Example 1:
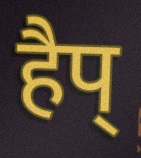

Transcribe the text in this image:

हैप्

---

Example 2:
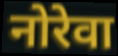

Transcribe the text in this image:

नोरेवा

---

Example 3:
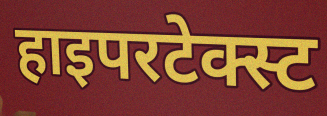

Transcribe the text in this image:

हाइपरटेक्स्ट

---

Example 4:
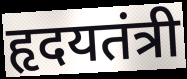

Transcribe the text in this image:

हृदयतंत्री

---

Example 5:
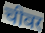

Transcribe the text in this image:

चीवर